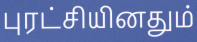
புரட்சியினதும்